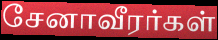
சேனாவீரர்கள்